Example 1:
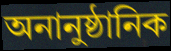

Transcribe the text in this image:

অনানুষ্ঠানিক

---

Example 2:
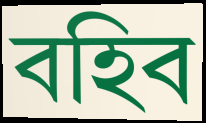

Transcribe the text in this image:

বহিব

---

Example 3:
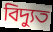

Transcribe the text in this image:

বিদ্যুত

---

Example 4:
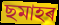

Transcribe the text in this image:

ছমাহৰ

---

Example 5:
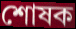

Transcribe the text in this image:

শোষক